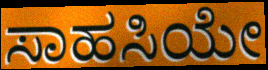
ಸಾಹಸಿಯೇ